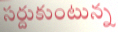
సర్దుకుంటున్న